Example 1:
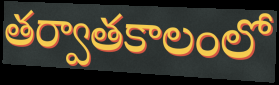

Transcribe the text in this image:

తర్వాతకాలంలో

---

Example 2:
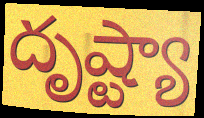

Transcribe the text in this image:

దృష్ట్యా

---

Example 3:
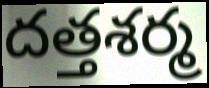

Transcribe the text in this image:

దత్తశర్మ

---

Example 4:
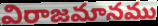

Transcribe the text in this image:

విరాజమానము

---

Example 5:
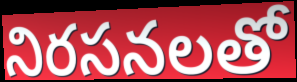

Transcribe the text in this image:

నిరసనలతో